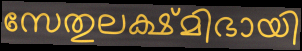
സേതുലക്ഷ്മിഭായി